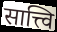
सात्त्वि